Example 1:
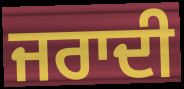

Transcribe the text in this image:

ਜਰਾਦੀ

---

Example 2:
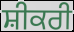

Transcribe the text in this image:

ਸ਼ੀਕਰੀ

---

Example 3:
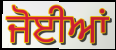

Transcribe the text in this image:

ਜੋਈਆਂ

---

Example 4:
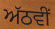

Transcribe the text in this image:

ਅੱਠਵੀਂ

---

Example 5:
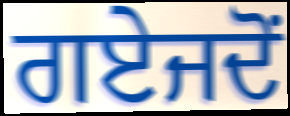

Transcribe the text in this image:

ਗਏਜਦੋਂ